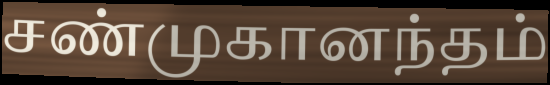
சண்முகானந்தம்